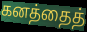
கனத்தைத்